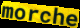
morche